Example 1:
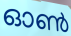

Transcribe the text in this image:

ഓൺ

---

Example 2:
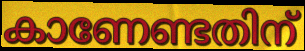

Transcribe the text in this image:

കാണേണ്ടതിന്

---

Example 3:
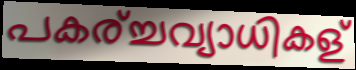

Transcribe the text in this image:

പകര്ച്ചവ്യാധികള്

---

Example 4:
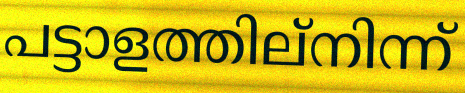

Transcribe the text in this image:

പട്ടാളത്തില്നിന്ന്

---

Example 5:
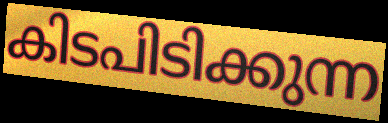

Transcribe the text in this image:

കിടപിടിക്കുന്ന